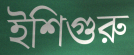
ইশিগুরু